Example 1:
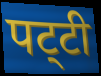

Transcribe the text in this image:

पट्‌टी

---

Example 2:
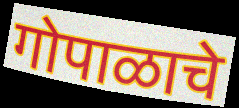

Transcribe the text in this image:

गोपाळाचे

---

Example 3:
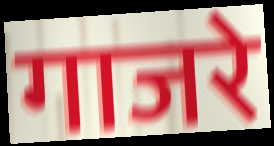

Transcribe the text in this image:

गाजरे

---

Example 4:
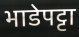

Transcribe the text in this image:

भाडेपट्टा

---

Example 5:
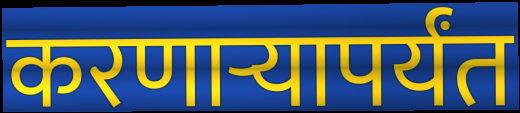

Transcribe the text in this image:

करणाऱ्यापर्यंत